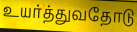
உயர்த்துவதோடு